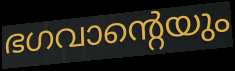
ഭഗവാന്റെയും